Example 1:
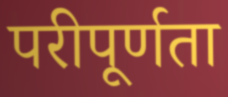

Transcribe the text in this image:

परीपूर्णता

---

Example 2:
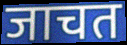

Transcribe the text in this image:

जाचत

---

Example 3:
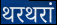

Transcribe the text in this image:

थरथरां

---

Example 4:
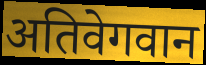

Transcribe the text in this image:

अतिवेगवान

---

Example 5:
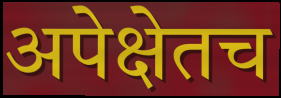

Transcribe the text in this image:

अपेक्षेतच